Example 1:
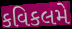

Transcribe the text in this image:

કવિકલમે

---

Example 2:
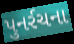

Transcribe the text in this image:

પુનર્રચના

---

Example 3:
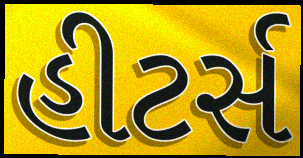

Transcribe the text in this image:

હીટર્સ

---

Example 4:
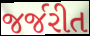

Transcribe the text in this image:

જર્જરીત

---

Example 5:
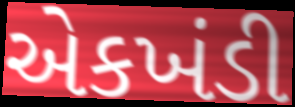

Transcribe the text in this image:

એકખંડી